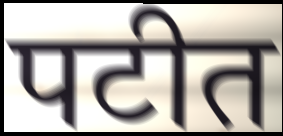
पटीत